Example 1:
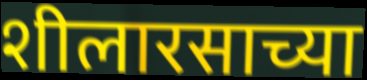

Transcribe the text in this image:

शीलारसाच्या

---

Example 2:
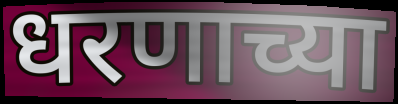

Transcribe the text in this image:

धरणाच्या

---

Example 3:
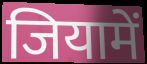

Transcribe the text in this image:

जियामें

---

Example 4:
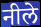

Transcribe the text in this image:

नीले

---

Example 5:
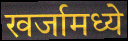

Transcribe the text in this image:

खर्जामध्ये